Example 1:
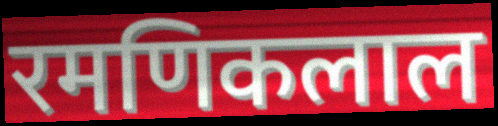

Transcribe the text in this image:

रमणिकलाल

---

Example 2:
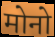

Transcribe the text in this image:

मोनो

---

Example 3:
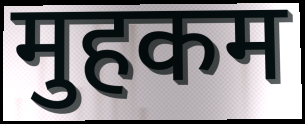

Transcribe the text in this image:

मुहकम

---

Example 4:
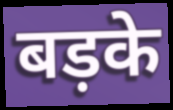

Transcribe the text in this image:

बड़के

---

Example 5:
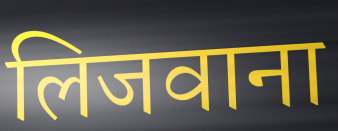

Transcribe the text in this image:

लिजवाना